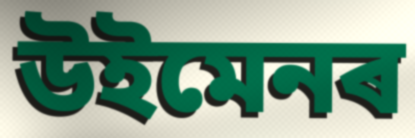
উইমেনৰ